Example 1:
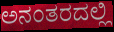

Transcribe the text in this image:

ಅನಂತರದಲ್ಲಿ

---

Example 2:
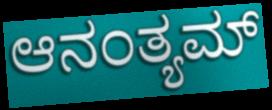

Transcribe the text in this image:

ಆನಂತ್ಯಮ್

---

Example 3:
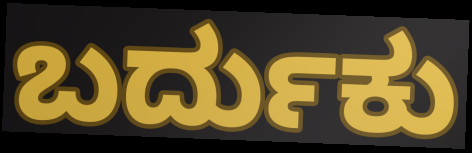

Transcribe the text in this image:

ಬರ್ದುಕು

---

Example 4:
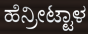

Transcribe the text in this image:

ಹೆನ್ರೀಟ್ಟಾಳ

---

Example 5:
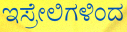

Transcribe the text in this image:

ಇಸ್ರೇಲಿಗಳಿಂದ